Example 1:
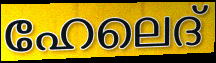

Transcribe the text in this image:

ഹേലെദ്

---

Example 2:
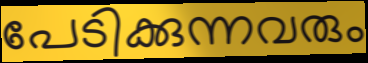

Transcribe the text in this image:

പേടിക്കുന്നവരും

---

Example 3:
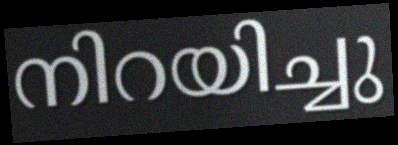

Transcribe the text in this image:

നിറയിച്ചു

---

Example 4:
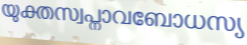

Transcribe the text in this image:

യുക്തസ്വപ്നാവബോധസ്യ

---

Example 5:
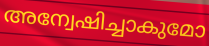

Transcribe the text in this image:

അന്വേഷിച്ചാകുമോ